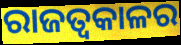
ରାଜତ୍ୱକାଳର